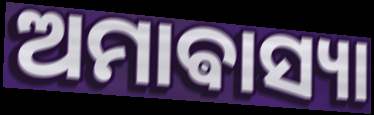
ଅମାଵାସ୍ୟା